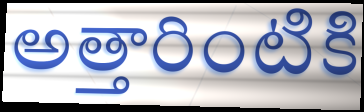
అత్తారింటికి